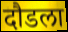
दौडला